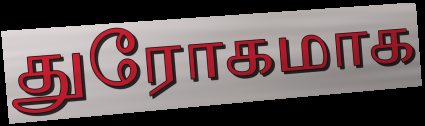
துரோகமாக